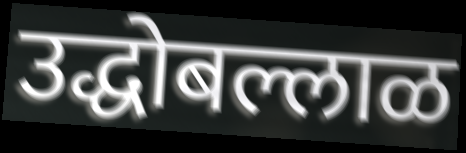
उद्धोबल्लाळ